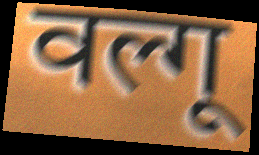
वल्गू